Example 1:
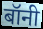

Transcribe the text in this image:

बॉनी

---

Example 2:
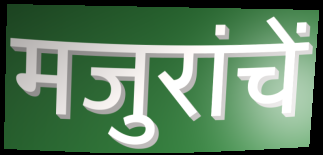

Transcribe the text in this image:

मजुरांचें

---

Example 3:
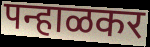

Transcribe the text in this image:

पन्हाळकर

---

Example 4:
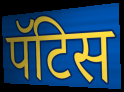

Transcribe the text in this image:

पॅटिस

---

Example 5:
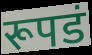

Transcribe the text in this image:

रूपडं